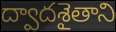
ద్వాదశైతాని